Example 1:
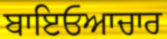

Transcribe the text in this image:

ਬਾਇਓਆਚਾਰ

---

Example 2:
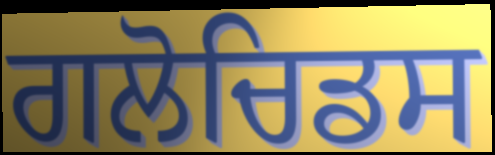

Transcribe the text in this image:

ਗਲੋਚਿਡਸ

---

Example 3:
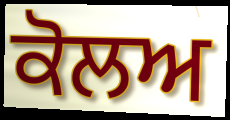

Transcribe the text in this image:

ਕੋਲਅ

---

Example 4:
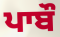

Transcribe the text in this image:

ਪਾਬੌ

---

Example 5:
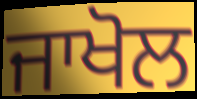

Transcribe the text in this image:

ਜਾਖੋਲ